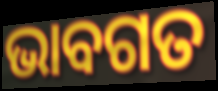
ଭାବଗତ